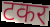
टकर